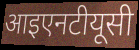
आइएनटीयूसी